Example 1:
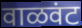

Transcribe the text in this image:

वाळवंट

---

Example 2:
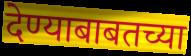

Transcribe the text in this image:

देण्याबाबतच्या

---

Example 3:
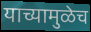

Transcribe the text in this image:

याच्यामुळेच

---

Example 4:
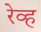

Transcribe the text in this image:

रेव्ह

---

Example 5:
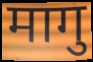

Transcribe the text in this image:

मागु